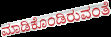
ಮಾಡಿಕೊಂಡಿರುವಂತೆ